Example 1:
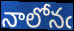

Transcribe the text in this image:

నాలోనఁ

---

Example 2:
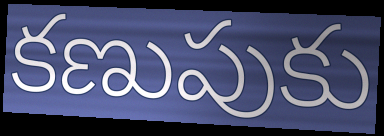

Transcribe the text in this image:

కణుపుకు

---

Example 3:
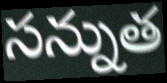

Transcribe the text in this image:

సన్నుత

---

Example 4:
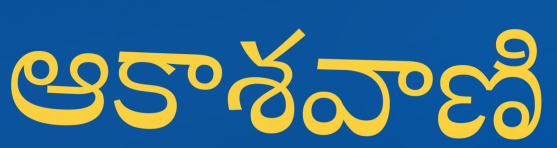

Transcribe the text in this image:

ఆకాశవాణి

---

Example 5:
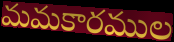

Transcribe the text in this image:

మమకారముల